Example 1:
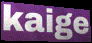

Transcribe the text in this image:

kaige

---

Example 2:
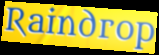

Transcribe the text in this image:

Raindrop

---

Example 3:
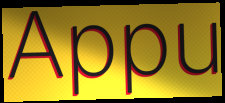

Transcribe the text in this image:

Appu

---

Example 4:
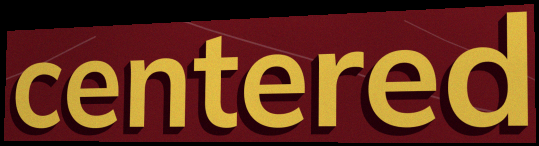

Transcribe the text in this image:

centered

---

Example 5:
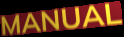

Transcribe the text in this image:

MANUAL